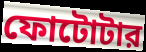
ফোটোটার